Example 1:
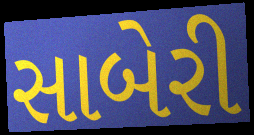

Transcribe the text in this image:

સાબેરી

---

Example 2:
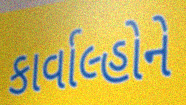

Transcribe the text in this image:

કાર્વાલ્હોને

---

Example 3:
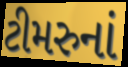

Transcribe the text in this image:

ટીમરુનાં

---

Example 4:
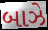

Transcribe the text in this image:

બાઝે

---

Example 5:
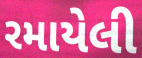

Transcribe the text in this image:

રમાયેલી